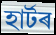
হাৰ্টৰ